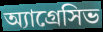
অ্যাগ্রেসিভ